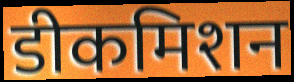
डीकमिशन